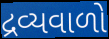
દ્રવ્યવાળો